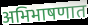
अभिभाषणात